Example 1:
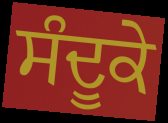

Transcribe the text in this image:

ਸੰਦੂਕੇ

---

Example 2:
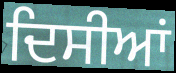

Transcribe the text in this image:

ਦਿਸੀਆਂ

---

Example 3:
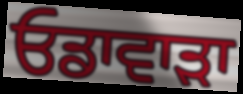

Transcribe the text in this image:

ਓਡਾਵਾੜਾ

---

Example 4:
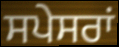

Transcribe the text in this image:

ਸਪੇਸਰਾਂ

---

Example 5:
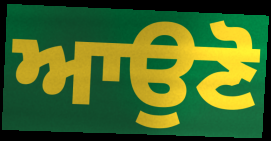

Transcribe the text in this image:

ਆਉਣੋ